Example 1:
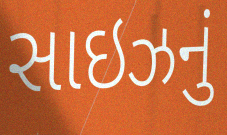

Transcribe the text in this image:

સાઇઝનું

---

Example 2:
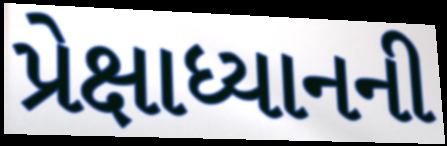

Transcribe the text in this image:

પ્રેક્ષાધ્યાનની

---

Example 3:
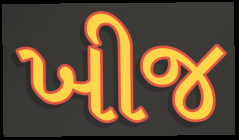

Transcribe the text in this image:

ખીજ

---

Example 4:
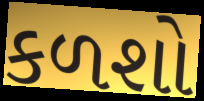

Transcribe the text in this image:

કળશો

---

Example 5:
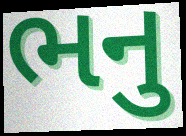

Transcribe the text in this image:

ભનુ